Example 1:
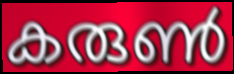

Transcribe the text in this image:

കരുൺ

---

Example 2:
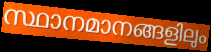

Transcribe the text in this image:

സ്ഥാനമാനങ്ങളിലും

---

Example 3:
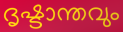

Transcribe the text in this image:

ദൃഷ്ടാന്തവും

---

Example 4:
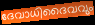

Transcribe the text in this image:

ദേവാധിദൈവവും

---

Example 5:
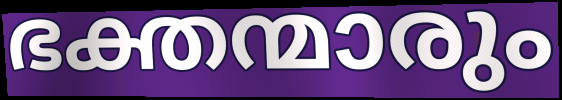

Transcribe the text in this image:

ഭക്തന്മാരും